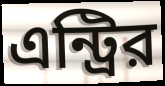
এন্ট্রির